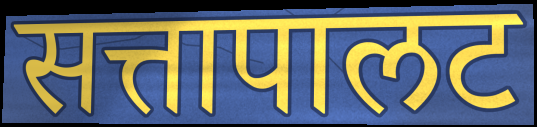
सत्तापालट